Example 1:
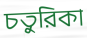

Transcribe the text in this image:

চতুরিকা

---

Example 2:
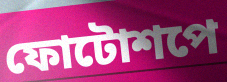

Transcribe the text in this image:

ফোটোশপে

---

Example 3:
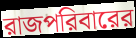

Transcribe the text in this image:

রাজপরিবারের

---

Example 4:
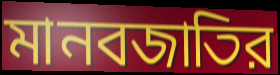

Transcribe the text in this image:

মানবজাতির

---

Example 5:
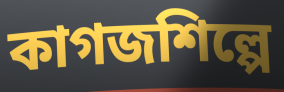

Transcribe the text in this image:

কাগজশিল্পে